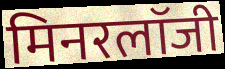
मिनरलॉजी